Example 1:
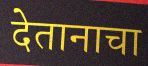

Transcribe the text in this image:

देतानाचा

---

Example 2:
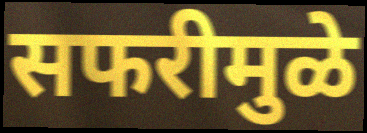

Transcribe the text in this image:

सफरीमुळे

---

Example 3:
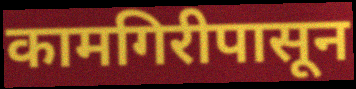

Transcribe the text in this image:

कामगिरीपासून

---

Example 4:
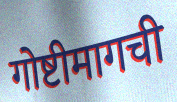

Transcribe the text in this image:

गोष्टीमागची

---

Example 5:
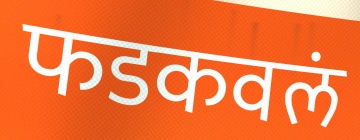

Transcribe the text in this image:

फडकवलं